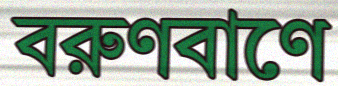
বরুণবাণে